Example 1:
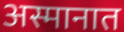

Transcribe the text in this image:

अस्मानात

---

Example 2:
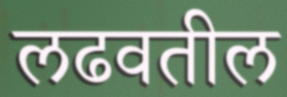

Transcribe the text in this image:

लढवतील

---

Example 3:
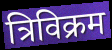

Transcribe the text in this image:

त्रिविक्रम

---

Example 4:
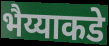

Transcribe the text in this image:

भैय्याकडे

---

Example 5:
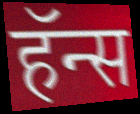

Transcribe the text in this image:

हॅन्स